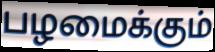
பழமைக்கும்